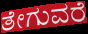
ತೇಗುವರೆ